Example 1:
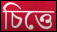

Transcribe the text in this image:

চিত্তে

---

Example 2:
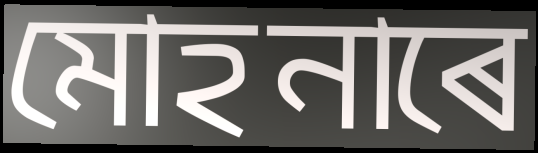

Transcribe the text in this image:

মোহনাৰে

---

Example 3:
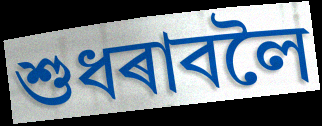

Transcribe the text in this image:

শুধৰাবলৈ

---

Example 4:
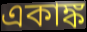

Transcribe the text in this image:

একাঙ্ক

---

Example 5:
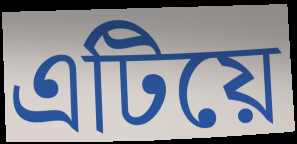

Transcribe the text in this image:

এটিয়ে